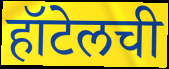
हॉटेलची